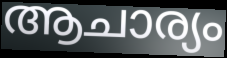
ആചാര്യം